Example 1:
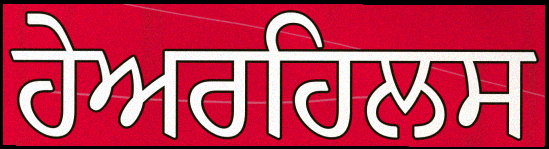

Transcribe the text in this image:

ਹੇਅਰਹਿਲਸ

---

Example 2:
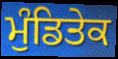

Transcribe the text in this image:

ਮੁੰਡਿਤੇਕ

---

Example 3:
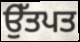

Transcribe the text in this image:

ਉੱਤਪਤ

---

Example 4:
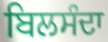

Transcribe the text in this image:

ਬਿਲਸੰਦਾ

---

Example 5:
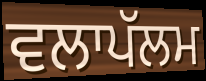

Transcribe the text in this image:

ਵਲਾਪੱਲਮ